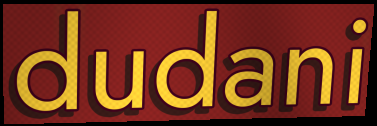
dudani